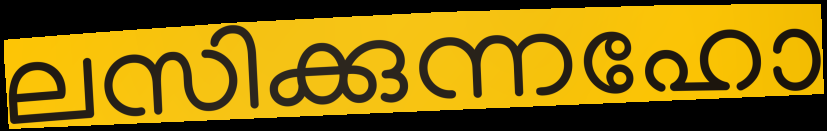
ലസിക്കുന്നഹോ